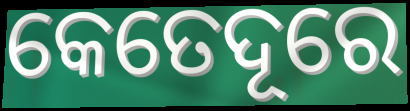
କେତେଦୂରେ